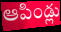
ఆపిండ్లు